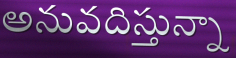
అనువదిస్తున్నా